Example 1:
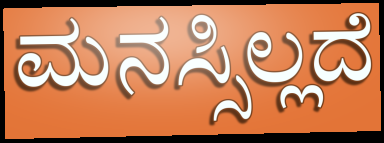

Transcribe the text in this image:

ಮನಸ್ಸಿಲ್ಲದೆ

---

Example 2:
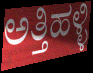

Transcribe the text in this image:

ಅತ್ತಿಹಳ್ಳಿ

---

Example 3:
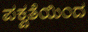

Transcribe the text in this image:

ಪಕ್ವತೆಯಿಂದ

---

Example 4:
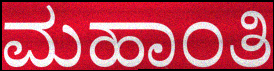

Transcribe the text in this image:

ಮಹಾಂತಿ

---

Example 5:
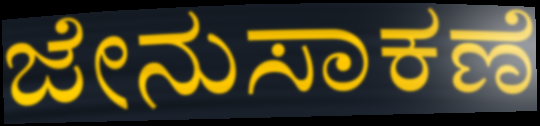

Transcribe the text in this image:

ಜೇನುಸಾಕಣೆ